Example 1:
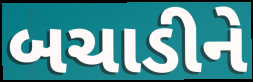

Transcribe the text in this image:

બચાડીને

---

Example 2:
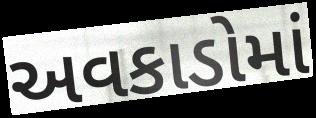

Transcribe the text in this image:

અવકાડોમાં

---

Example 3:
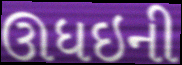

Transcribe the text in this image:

ઊધઇની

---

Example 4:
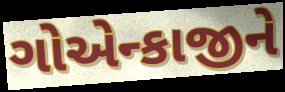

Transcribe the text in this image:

ગોએન્કાજીને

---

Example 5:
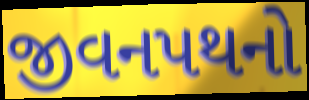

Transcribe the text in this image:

જીવનપથનો